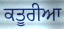
ਕਤੂਰੀਆ